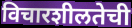
विचारशीलतेची